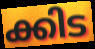
ക്കിട